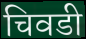
चिवडी